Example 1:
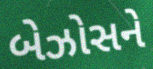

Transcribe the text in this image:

બેઝોસને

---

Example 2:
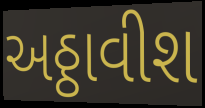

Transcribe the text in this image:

અઠ્ઠાવીશ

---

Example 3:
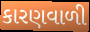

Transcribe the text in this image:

કારણવાળી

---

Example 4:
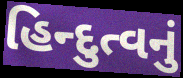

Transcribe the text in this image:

હિન્દુત્વનું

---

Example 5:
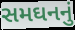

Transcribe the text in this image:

સમઘનનું